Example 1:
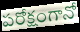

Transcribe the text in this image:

పరోక్షంగానో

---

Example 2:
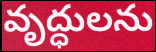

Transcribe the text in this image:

వృద్ధులను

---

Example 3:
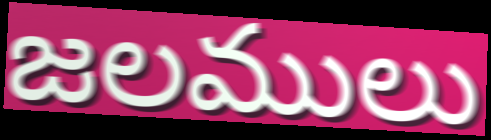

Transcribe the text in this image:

జలములు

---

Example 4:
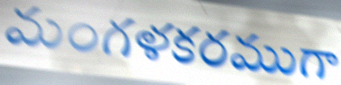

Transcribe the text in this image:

మంగళకరముగా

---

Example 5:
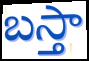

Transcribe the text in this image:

బస్తా